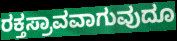
ರಕ್ತಸ್ರಾವವಾಗುವುದೂ